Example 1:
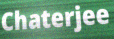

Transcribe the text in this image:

Chaterjee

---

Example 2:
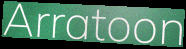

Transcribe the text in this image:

Arratoon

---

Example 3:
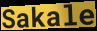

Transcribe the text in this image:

Sakale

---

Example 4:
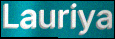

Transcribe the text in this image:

Lauriya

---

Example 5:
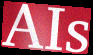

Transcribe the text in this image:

AIs